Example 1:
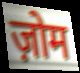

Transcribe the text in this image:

ज़ोम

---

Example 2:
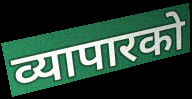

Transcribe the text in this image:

व्यापारको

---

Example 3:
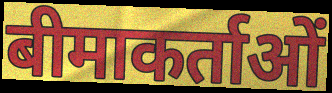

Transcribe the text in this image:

बीमाकर्ताओं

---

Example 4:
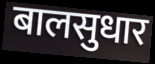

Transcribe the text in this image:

बालसुधार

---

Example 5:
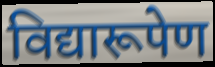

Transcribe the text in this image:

विद्यारूपेण